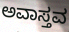
ಅವಾಸ್ತವ